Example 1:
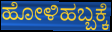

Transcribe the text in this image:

ಹೋಳಿಹಬ್ಬಕ್ಕೆ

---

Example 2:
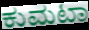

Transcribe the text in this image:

ಕುಮಟಾ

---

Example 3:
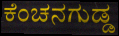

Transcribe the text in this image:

ಕೆಂಚನಗುಡ್ಡ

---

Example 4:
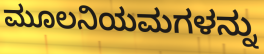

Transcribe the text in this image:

ಮೂಲನಿಯಮಗಳನ್ನು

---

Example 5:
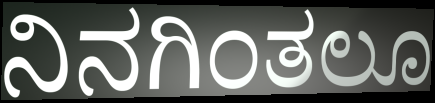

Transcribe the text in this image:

ನಿನಗಿಂತಲೂ